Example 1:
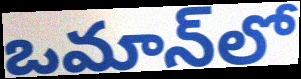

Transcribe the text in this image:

ఒమాన్‌లో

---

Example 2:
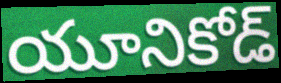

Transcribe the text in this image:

యూనికోడ్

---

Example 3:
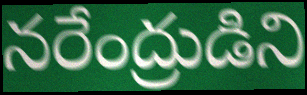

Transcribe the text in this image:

నరేంద్రుడిని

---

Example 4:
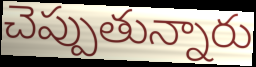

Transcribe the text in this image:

చెప్పుతున్నారు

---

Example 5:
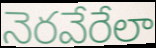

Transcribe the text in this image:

నెరవేరేలా